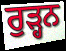
ਰੁੜ੍ਹਨ